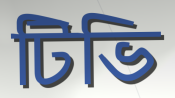
টিভি